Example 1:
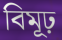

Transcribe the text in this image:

বিমূঢ়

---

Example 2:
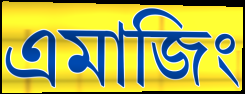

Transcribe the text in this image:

এমাজিং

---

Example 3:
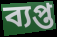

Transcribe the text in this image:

ব্যপ্ত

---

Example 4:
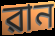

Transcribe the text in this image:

ৱান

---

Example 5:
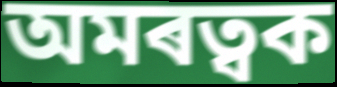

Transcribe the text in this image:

অমৰত্বক